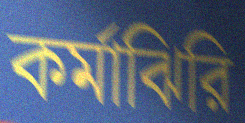
কর্মাঝিরি